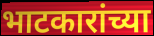
भाटकारांच्या